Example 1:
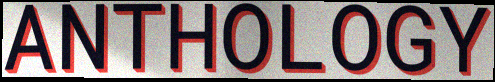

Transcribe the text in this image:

ANTHOLOGY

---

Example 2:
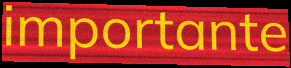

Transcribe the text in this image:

importante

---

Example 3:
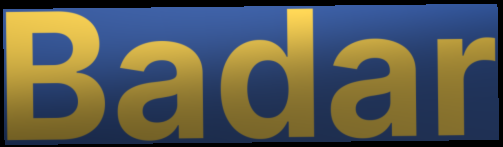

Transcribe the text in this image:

Badar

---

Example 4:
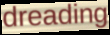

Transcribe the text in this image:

dreading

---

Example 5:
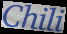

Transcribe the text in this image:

Chili